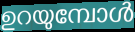
ഉറയുമ്പോൾ